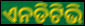
ଏନଡିଟିଭି